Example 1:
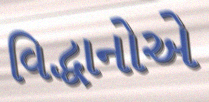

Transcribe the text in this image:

વિદ્ધાનોએ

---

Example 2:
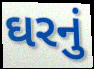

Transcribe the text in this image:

ઘરનું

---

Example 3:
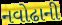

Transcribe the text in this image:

નવોઢાની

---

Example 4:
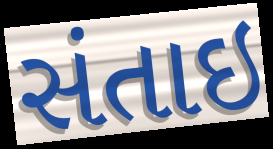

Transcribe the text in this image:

સંતાઇ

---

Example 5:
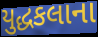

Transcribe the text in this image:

યુદ્ધકલાના